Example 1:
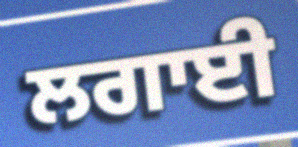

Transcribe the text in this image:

ਲਗਾਈ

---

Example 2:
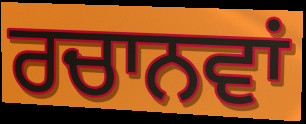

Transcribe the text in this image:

ਰਚਾਨਵਾਂ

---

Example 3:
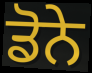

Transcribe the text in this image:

ਡੋਨੇ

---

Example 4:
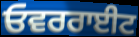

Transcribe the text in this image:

ਓਵਰਰਾਈਟ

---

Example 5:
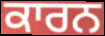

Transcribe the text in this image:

ਕਾਰਨ